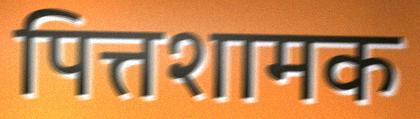
पित्तशामक